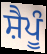
ਸ਼ੈਪੂੰ